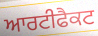
ਆਰਟੀਫੈਕਟ